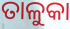
ତାଳୁକା